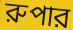
রুপার